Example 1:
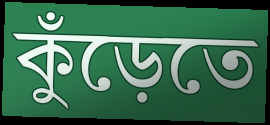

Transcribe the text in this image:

কুঁড়েতে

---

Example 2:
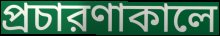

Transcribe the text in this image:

প্রচারণাকালে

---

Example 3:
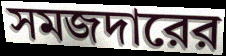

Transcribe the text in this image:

সমজদারের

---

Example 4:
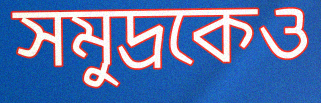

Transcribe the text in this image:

সমুদ্রকেও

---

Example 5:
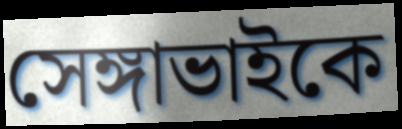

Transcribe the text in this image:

সেঙ্গাভাইকে